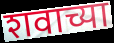
शवाच्या